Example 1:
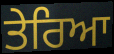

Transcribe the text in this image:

ਤੇਰਿਆ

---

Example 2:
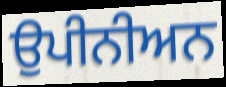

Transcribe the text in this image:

ਉਪੀਨੀਅਨ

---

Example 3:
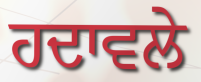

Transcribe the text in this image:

ਹਦਾਵਲੇ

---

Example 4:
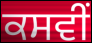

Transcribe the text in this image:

ਕਸਵੀਂ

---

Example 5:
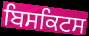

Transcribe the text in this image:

ਬਿਸਕਿਟਸ